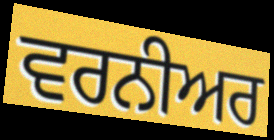
ਵਰਨੀਅਰ